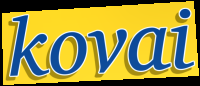
kovai